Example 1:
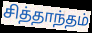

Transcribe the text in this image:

சித்தாந்தம்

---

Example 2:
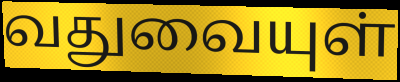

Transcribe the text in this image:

வதுவையுள்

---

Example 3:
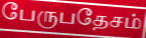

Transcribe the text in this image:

பேருபதேசம்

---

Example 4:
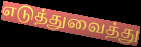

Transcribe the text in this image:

எடுத்துவைத்து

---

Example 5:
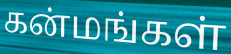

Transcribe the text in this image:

கன்மங்கள்